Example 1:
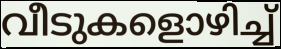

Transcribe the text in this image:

വീടുകളൊഴിച്ച്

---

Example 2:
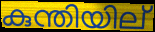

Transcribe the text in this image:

കുന്തിയില്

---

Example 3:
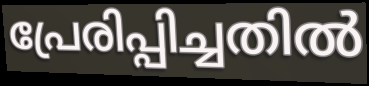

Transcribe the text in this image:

പ്രേരിപ്പിച്ചതിൽ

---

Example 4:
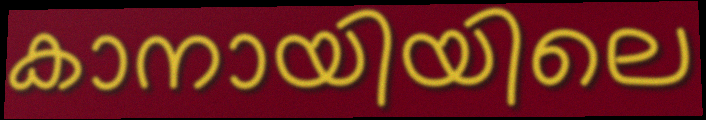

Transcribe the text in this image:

കാനായിയിലെ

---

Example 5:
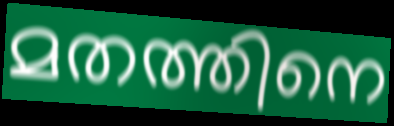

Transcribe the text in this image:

മതത്തിനെ